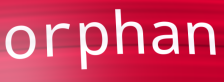
orphan